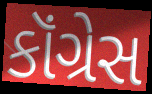
કૉંગ્રેસ